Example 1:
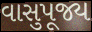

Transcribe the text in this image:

વાસુપૂજ્ય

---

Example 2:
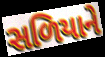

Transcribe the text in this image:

સળિયાને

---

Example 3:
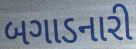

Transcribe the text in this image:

બગાડનારી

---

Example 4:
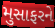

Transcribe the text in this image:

મુસાફરને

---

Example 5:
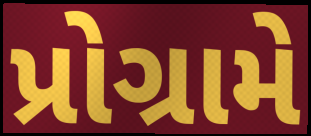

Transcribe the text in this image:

પ્રોગ્રામે